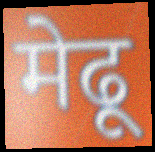
मेढू